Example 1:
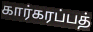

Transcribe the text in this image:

கார்கரப்பத்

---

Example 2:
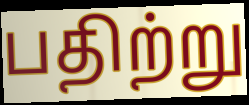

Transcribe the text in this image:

பதிற்று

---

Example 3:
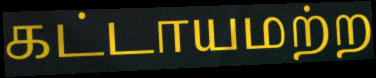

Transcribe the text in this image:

கட்டாயமற்ற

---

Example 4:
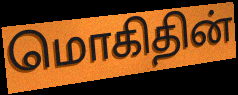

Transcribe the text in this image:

மொகிதின்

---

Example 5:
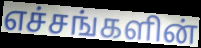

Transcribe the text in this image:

எச்சங்களின்